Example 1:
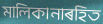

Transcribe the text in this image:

মালিকানাৰহিত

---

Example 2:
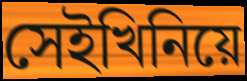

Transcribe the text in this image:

সেইখিনিয়ে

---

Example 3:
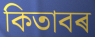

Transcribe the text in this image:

কিতাবৰ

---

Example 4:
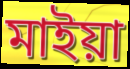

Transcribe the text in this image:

মাইয়া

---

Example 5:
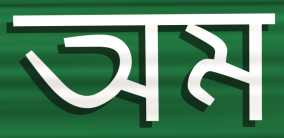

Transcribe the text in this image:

অম